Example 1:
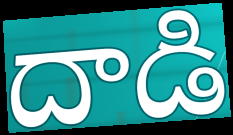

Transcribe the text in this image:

దాడి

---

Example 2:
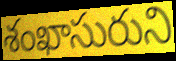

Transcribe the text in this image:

శంఖాసురుని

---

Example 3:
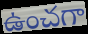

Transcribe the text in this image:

ఉంచగా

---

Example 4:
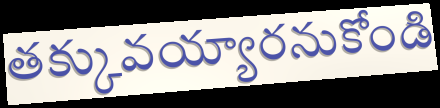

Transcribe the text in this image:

తక్కువయ్యారనుకోండి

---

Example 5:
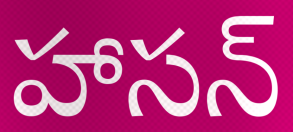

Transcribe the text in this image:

హాసన్